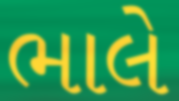
ભાલે